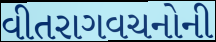
વીતરાગવચનોની